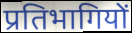
प्रतिभागियों